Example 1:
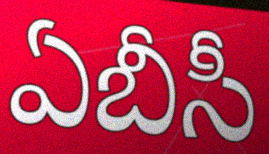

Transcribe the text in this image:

ఏబీసీ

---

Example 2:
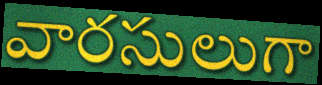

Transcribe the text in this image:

వారసులుగా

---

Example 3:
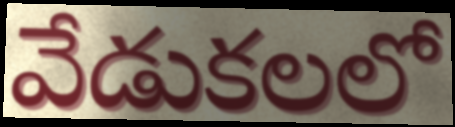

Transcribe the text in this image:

వేడుకలలో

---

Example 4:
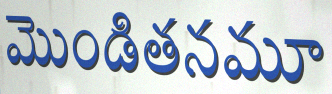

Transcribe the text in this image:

మొండితనమూ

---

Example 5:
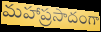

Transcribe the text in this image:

మహాప్రసాదంగా